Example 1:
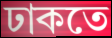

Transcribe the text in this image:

ঢাকতে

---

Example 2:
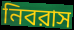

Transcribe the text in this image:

নিবরাস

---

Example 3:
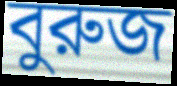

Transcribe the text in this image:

বুরুজ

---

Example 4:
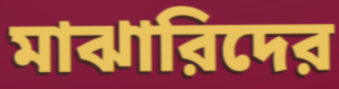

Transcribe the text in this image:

মাঝারিদের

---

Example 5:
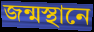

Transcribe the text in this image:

জন্মস্থানে